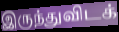
இருந்துவிடக்